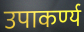
उपाकर्ण्य